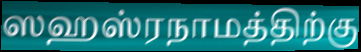
ஸஹஸ்ரநாமத்திற்கு